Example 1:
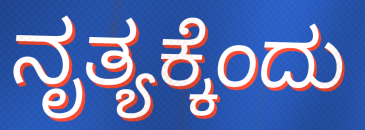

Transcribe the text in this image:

ನೃತ್ಯಕ್ಕೆಂದು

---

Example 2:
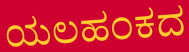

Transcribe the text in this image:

ಯಲಹಂಕದ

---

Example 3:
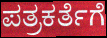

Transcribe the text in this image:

ಪತ್ರಕರ್ತೆಗೆ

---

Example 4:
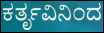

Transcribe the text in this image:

ಕರ್ತೃವಿನಿಂದ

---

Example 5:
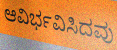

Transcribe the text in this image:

ಆವಿರ್ಭವಿಸಿದವು